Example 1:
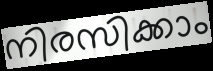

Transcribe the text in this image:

നിരസിക്കാം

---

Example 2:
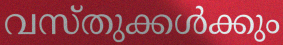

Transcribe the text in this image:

വസ്തുക്കൾക്കും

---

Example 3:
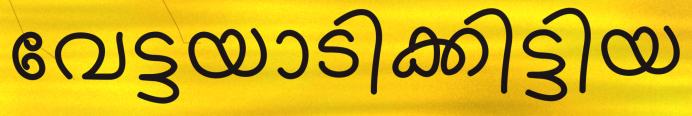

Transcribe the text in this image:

വേട്ടയാടിക്കിട്ടിയ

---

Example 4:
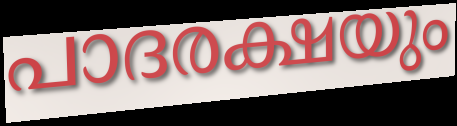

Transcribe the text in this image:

പാദരക്ഷയും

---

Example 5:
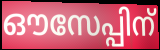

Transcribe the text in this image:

ഔസേപ്പിന്